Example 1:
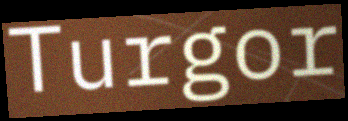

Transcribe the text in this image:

Turgor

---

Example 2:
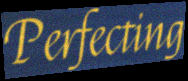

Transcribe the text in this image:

Perfecting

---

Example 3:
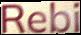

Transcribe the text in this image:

Rebi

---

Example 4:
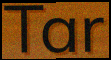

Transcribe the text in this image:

Tar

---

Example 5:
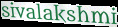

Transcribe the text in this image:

sivalakshmi